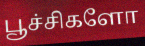
பூச்சிகளோ